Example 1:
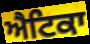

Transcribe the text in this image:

ਐਟਿਕਾ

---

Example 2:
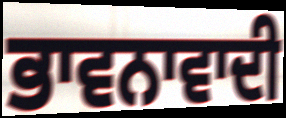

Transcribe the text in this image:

ਭਾਵਨਾਵਾਦੀ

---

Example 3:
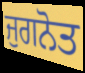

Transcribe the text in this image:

ਜੁਗਨੋਤ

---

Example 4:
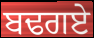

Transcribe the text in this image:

ਬਢਗਏ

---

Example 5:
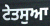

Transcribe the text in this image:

ਟੇਤਸੁਆ